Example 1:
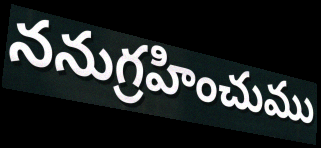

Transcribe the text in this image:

ననుగ్రహించుము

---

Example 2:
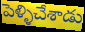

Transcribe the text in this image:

పెళ్ళిచేశాడు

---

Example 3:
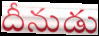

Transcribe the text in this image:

దీనుడు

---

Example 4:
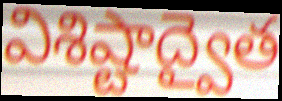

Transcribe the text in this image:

విశిష్టాద్వైత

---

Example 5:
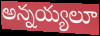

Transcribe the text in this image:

అన్నయ్యలూ